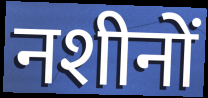
नशीनों